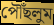
পৌঁছলুম